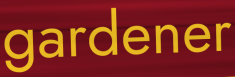
gardener